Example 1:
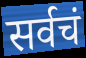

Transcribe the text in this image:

सर्वचं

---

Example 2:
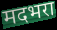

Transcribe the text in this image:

मदभरा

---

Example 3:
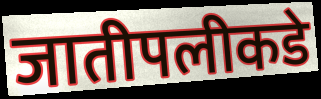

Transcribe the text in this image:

जातीपलीकडे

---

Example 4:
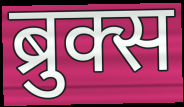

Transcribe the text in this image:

ब्रुक्‍स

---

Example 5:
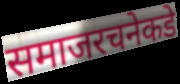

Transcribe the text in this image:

समाजरचनेकडे